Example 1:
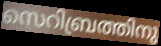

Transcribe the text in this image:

സെറിബ്രത്തിനു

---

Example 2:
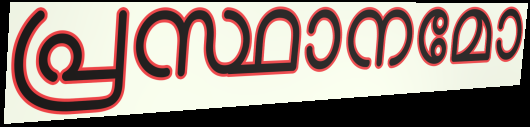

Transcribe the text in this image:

പ്രസ്ഥാനമോ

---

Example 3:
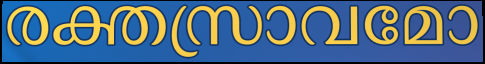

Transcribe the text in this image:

രക്തസ്രാവമോ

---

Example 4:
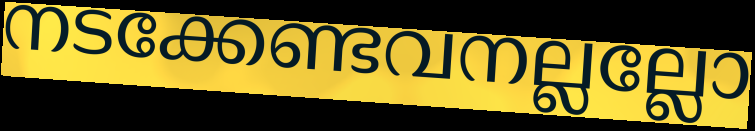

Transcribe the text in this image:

നടക്കേണ്ടവനല്ലല്ലോ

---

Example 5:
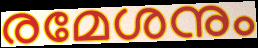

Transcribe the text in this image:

രമേശനും